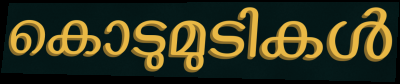
കൊടുമുടികൾ